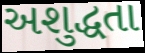
અશુદ્ધતા